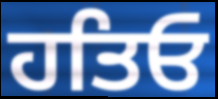
ਹਤਿਓ